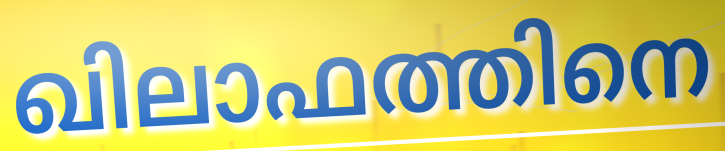
ഖിലാഫത്തിനെ